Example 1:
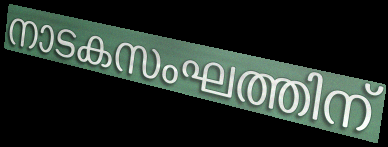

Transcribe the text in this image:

നാടകസംഘത്തിന്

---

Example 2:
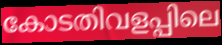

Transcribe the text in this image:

കോടതിവളപ്പിലെ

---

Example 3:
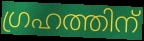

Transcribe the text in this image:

ഗ്രഹത്തിന്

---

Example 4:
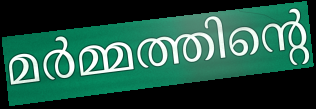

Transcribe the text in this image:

മർമ്മത്തിന്റെ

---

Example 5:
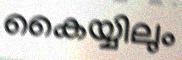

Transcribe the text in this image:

കൈയ്യിലും